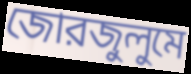
জোরজুলুমে